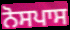
ਨੋਸਪਾਸ